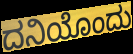
ದನಿಯೊಂದು